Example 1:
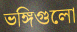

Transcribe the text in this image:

ভঙ্গিগুলো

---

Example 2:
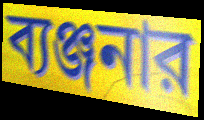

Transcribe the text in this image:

ব্যঞ্জনার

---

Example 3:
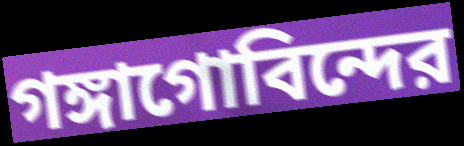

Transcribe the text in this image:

গঙ্গাগোবিন্দের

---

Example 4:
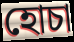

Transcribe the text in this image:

হোচা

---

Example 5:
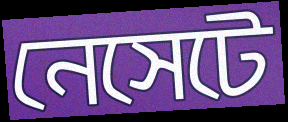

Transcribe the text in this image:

নেসেটে